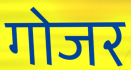
गोजर